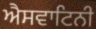
ਐਸਵਾਟਿਨੀ